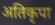
अतिकृपा